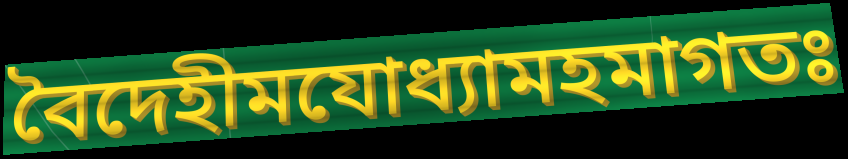
বৈদেহীমযোধ্যামহমাগতঃ